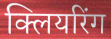
क्लियरिंग